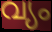
വ്യം